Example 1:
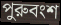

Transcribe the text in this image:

পুরুবংশ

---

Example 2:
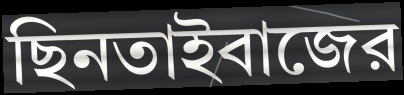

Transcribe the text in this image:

ছিনতাইবাজের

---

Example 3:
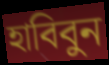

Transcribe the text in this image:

হাবিবুন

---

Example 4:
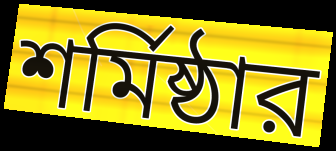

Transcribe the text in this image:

শর্মিষ্ঠার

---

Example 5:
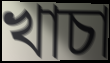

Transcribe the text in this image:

খাচা